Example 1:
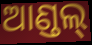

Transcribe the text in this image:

ଆଣ୍ଡଲ୍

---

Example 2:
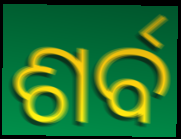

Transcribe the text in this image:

ଶର୍ବ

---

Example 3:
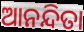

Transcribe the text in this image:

ଆନନ୍ଦିତା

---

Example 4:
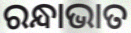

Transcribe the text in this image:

ରନ୍ଧାଭାତ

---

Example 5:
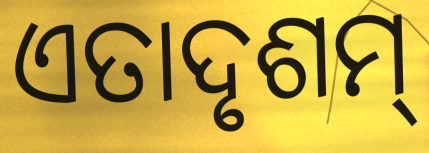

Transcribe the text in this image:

ଏତାଦୃଶମ୍